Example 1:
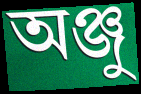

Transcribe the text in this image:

অঞ্জু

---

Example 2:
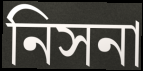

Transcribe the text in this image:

নিসনা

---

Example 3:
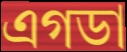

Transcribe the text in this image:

এগডা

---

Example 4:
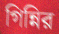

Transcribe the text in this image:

গিন্নির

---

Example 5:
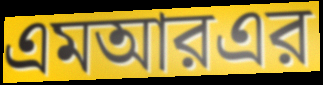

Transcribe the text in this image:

এমআরএর